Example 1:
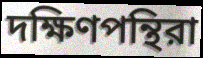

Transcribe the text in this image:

দক্ষিণপন্থিরা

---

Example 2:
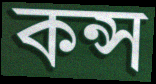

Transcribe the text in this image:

কন্স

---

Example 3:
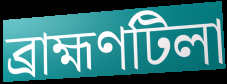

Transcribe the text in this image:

ব্রাহ্মণটিলা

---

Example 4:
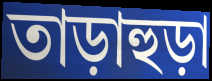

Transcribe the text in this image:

তাড়াহুড়া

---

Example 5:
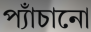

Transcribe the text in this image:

প্যাঁচানো